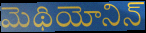
మెథియోనిన్